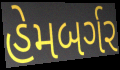
હેમબર્ગર